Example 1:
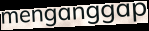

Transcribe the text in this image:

menganggap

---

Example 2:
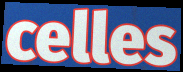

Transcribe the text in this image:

celles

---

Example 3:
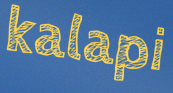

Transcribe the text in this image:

kalapi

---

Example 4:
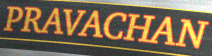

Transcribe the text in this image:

PRAVACHAN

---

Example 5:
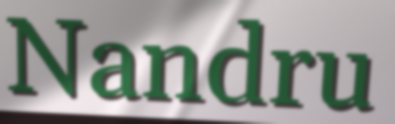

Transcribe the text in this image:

Nandru